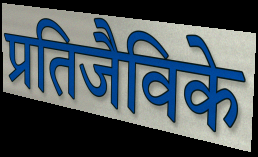
प्रतिजैविके